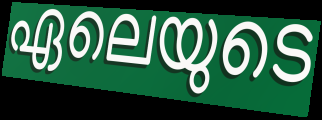
ഏലെയുടെ